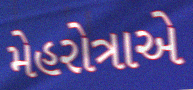
મેહરોત્રાએ